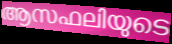
ആസഫലിയുടെ